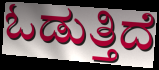
ಓಡುತ್ತಿದೆ